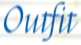
Outfit